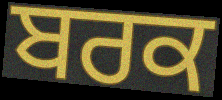
ਬਰਕ